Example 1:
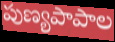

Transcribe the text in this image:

పుణ్యపాపాల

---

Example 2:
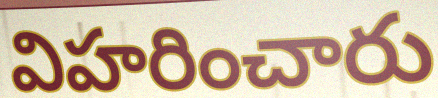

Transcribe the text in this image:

విహరించారు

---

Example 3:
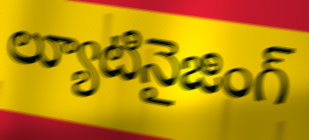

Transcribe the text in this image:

ల్యూటినైజింగ్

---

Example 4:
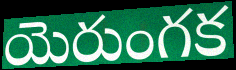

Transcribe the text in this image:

యెరుంగక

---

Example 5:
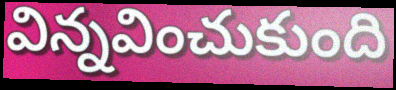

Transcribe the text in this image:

విన్నవించుకుంది